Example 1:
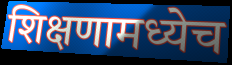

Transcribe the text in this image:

शिक्षणामध्येच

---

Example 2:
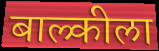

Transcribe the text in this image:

बाल्कीला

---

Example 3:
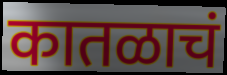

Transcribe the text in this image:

कातळाचं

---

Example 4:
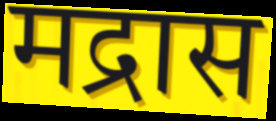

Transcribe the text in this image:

मद्रास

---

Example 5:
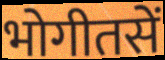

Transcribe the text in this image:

भोगीतसें